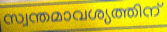
സ്വന്തമാവശ്യത്തിന്